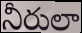
నీరులా